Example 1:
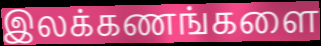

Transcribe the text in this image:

இலக்கணங்களை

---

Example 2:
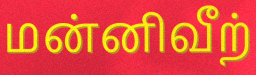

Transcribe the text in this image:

மன்னிவீற்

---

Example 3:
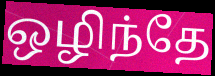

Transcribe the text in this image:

ஒழிந்தே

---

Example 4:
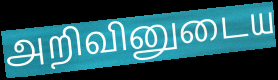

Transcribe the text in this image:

அறிவினுடைய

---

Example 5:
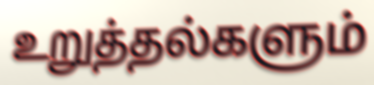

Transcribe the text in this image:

உறுத்தல்களும்